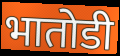
भातोडी